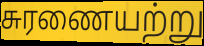
சுரணையற்று